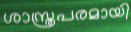
ശാസ്ത്രപരമായി